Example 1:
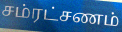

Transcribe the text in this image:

சம்ரட்சணம்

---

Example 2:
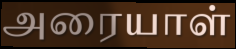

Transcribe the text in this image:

அரையாள்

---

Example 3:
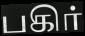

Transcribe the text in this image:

பகிர்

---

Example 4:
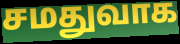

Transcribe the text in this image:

சமதுவாக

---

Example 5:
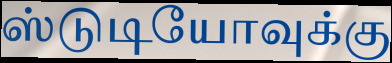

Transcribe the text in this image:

ஸ்டுடியோவுக்கு